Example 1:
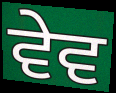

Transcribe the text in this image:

ਵੇਵ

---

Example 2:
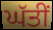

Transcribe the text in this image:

ਘੱਤੀਂ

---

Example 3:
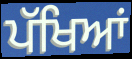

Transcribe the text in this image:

ਪੱਖਿਆਂ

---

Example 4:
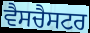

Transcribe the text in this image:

ਵੈਸਚੈਸਟਰ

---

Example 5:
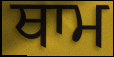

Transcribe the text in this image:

ਥਾਮ